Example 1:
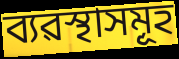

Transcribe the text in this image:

ব্যৱস্থাসমূহ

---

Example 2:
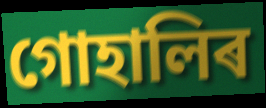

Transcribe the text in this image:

গোহালিৰ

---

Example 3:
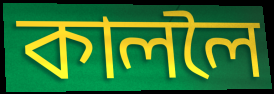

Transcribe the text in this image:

কাললৈ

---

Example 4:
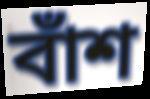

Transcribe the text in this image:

বাঁশ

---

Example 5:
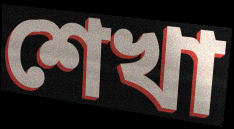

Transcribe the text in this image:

শেখা